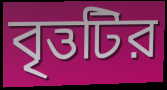
বৃত্তটির